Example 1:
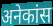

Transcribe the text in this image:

अनेकांस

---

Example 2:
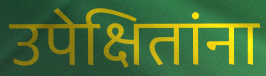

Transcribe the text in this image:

उपेक्षितांना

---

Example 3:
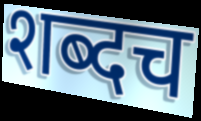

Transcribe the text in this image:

शब्दच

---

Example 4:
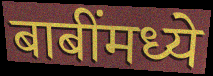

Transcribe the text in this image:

बाबींमध्ये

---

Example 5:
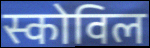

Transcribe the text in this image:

स्कोविल